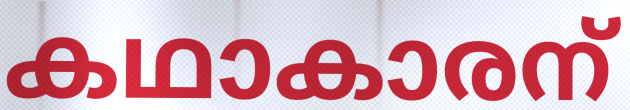
കഥാകാരന്